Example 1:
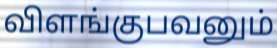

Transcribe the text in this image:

விளங்குபவனும்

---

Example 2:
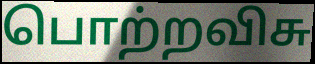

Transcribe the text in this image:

பொற்றவிசு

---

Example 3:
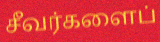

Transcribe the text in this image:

சீவர்களைப்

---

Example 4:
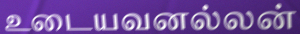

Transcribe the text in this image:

உடையவனல்லன்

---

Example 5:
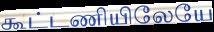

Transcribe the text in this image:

கூட்டணியிலேயே